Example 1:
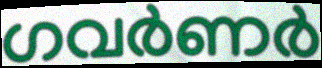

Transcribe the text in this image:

ഗവർണർ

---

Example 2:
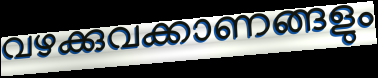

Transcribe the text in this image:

വഴക്കുവക്കാണങ്ങളും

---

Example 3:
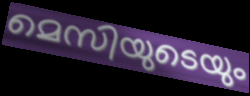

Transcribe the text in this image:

മെസിയുടെയും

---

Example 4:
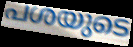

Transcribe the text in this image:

പശയുടെ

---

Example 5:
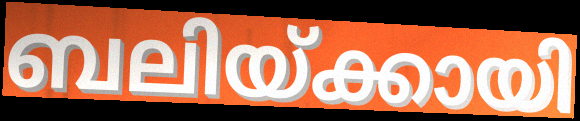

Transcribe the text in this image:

ബലിയ്ക്കായി